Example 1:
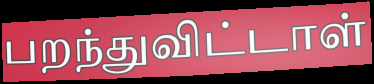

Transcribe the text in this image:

பறந்துவிட்டாள்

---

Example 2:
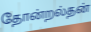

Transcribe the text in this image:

தோன்றல்தன்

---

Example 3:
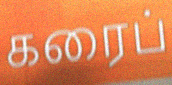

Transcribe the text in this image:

கரைப்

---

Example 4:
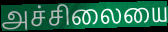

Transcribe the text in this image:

அச்சிலையை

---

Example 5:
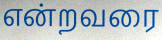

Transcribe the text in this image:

என்றவரை